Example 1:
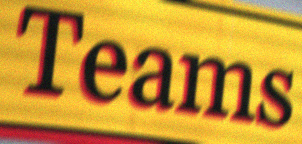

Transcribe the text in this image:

Teams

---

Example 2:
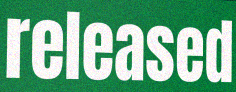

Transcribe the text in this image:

released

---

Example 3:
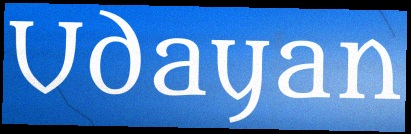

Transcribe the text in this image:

Udayan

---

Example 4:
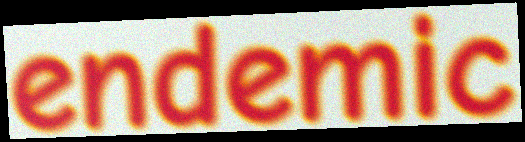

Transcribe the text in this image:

endemic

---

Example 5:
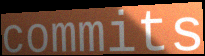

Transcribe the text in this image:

commits